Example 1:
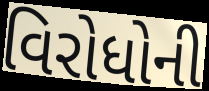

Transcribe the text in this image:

વિરોધોની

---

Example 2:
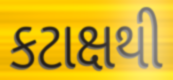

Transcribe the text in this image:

કટાક્ષથી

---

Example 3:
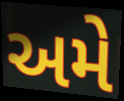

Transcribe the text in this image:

અમે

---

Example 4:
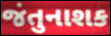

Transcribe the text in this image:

જંતુનાશક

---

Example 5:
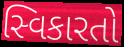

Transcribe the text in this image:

સ્વિકારતો